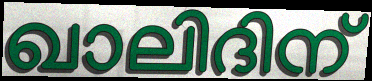
ഖാലിദിന്